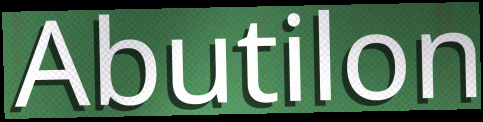
Abutilon